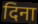
दिना